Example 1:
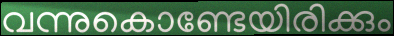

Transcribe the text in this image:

വന്നുകൊണ്ടേയിരിക്കും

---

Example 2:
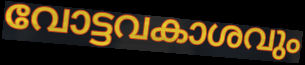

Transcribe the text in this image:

വോട്ടവകാശവും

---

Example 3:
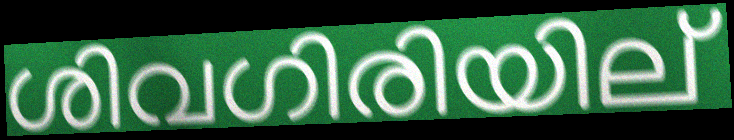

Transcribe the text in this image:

ശിവഗിരിയില്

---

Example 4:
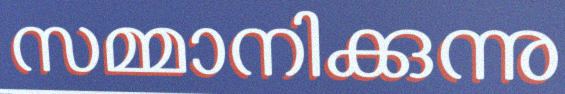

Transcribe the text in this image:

സമ്മാനിക്കുന്നു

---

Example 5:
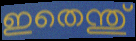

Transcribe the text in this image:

ഇതെന്തു്